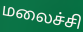
மலைச்சி